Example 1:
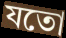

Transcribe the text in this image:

যতো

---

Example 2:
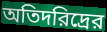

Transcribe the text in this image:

অতিদরিদ্রের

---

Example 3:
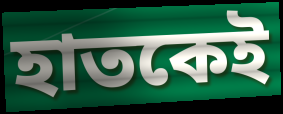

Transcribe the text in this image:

হাতকেই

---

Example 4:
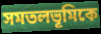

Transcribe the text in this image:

সমতলভূমিকে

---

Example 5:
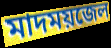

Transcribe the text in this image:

মাদময়জেল